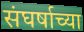
संघर्षाच्या